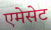
एमेसेट